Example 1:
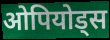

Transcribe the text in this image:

ओपियोड्स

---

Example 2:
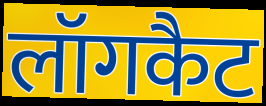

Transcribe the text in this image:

लॉगकैट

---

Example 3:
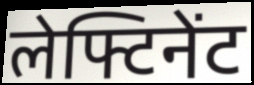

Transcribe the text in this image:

लेफ्टिनेंट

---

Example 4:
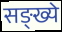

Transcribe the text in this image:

सङ्ख्ये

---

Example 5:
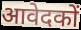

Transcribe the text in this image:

आवेदकों